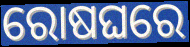
ରୋଷଘରେ